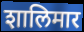
शालिमार